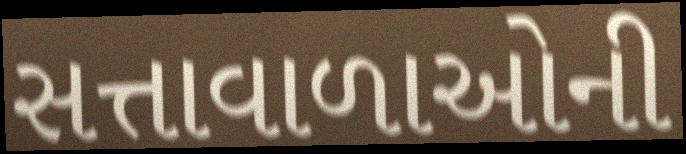
સત્તાવાળાઓની